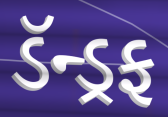
ડૅન્ડ્રફ